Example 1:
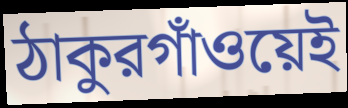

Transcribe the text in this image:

ঠাকুরগাঁওয়েই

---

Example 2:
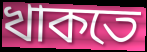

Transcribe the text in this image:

খাকতে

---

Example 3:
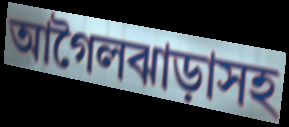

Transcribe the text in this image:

আগৈলঝাড়াসহ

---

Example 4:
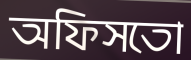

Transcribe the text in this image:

অফিসতো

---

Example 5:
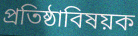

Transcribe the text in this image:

প্রতিষ্ঠাবিষয়ক